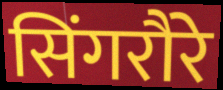
सिंगरौरे